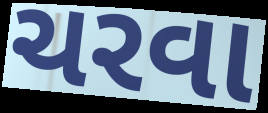
ચરવા